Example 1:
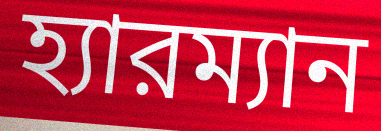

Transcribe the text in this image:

হ্যারম্যান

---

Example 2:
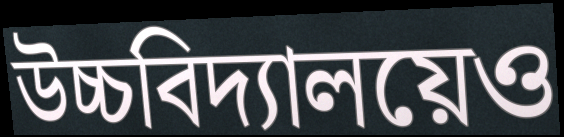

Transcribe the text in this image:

উচ্চবিদ্যালয়েও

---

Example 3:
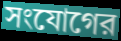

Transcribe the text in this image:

সংযোগের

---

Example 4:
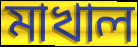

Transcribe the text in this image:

মাখাল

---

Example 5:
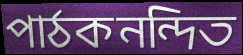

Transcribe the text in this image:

পাঠকনন্দিত